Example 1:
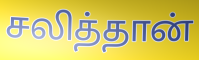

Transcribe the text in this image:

சலித்தான்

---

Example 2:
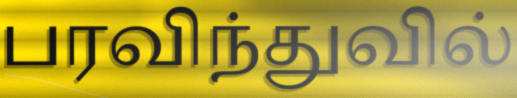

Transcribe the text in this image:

பரவிந்துவில்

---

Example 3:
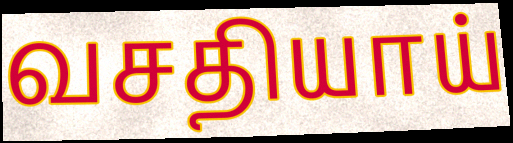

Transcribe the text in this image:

வசதியாய்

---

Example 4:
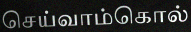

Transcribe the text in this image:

செய்வாம்கொல்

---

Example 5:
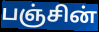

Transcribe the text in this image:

பஞ்சின்